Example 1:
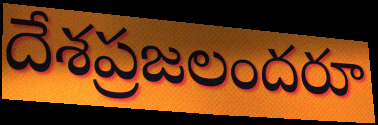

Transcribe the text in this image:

దేశప్రజలందరూ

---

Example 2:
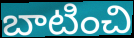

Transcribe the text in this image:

బాటించి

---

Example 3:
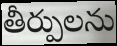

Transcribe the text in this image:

తీర్పులను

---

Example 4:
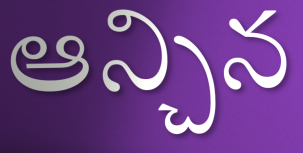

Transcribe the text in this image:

ఆన్చిన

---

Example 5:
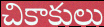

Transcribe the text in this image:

చికాకులు